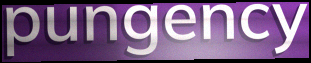
pungency